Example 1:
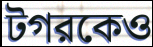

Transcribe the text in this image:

টগরকেও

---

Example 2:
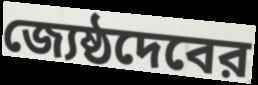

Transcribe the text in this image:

জ্যেষ্ঠদেবের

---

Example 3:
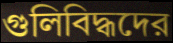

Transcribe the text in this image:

গুলিবিদ্ধদের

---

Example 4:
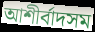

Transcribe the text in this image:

আশীর্বাদসম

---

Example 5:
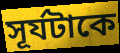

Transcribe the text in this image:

সূর্যটাকে